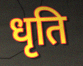
धृति